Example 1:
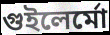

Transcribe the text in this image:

গুইলের্মো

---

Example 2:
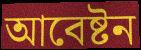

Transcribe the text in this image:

আবেষ্টন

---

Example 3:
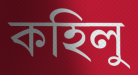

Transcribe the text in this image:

কহিলু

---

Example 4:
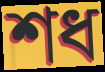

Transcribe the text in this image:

শধ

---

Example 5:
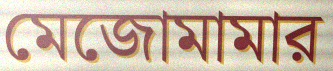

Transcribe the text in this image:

মেজোমামার